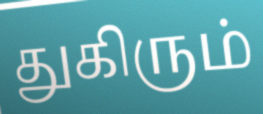
துகிரும்